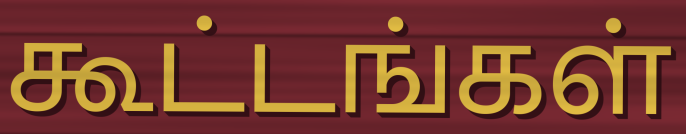
கூட்டங்கள்